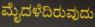
ಮೈದಳೆದಿರುವುದು